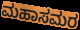
ಮಹಾಸಮರ